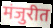
मंजुरीत